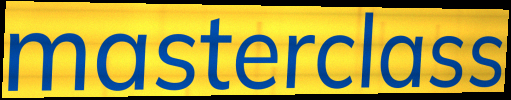
masterclass